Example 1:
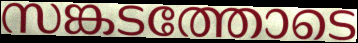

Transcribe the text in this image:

സങ്കടത്തോടെ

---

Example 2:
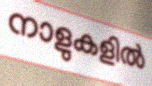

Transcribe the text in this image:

നാളുകളിൽ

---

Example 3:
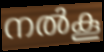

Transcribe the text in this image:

നൽകൂ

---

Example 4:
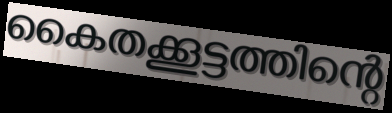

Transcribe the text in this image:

കൈതക്കൂട്ടത്തിന്റെ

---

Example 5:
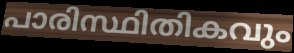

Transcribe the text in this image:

പാരിസ്ഥിതികവും